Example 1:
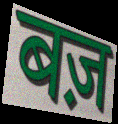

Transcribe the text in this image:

बज़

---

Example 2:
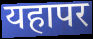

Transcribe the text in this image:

यहापर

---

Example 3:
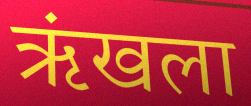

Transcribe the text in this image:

ऋंखला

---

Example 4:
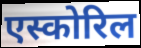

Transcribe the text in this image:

एस्कोरिल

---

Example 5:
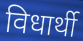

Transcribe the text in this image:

विधार्थी